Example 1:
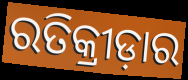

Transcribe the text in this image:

ରତିକ୍ରୀଡ଼ାର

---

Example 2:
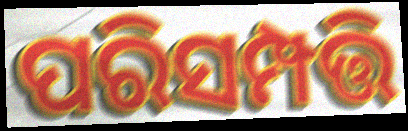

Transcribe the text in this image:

ପରିସମ୍ପତ୍ତି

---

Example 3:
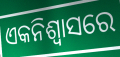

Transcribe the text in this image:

ଏକନିଶ୍ୱାସରେ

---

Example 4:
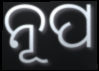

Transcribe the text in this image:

ନୂପ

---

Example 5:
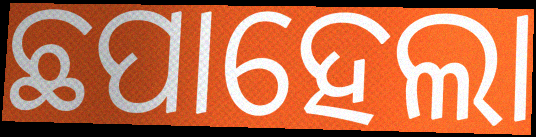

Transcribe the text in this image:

ଛପାହେଲା